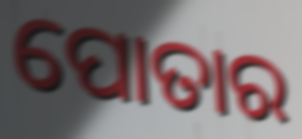
ପୋତାର